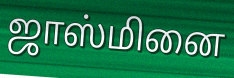
ஜாஸ்மினை